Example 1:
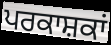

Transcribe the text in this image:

ਪਰਕਾਸ਼ਕਾਂ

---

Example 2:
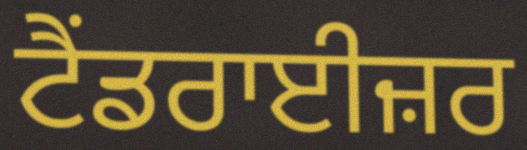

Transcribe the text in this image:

ਟੈਂਡਰਾਈਜ਼ਰ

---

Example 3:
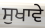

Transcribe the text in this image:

ਸੁਖਾਵੇ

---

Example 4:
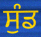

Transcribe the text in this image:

ਸੁੰਡ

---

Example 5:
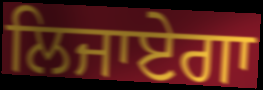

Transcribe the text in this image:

ਲਿਜਾਏਗਾ